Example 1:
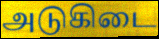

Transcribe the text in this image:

அடுகிடை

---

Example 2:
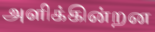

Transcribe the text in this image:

அளிக்கின்றன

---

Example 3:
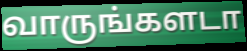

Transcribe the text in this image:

வாருங்களடா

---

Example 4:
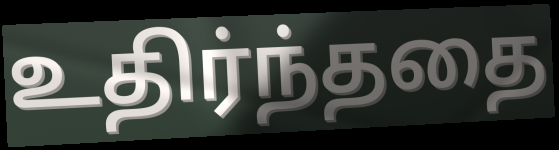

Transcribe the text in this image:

உதிர்ந்ததை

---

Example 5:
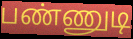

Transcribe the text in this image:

பண்ணுடி